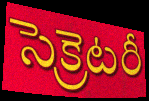
సెక్రెటరీ